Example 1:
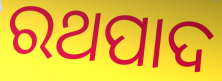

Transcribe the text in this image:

ରଥପାଦ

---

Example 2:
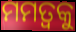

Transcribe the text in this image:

ମମତ୍ୱକୁ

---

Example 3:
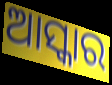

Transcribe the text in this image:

ଆସ୍କାର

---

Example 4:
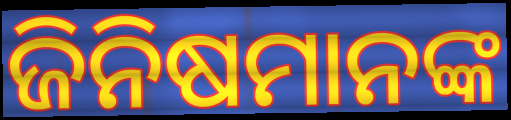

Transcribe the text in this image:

ଜିନିଷମାନଙ୍କ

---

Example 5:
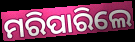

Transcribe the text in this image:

ମରିପାରିଲେ